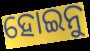
ହୋଇନୁ